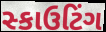
સ્કાઉટિંગ